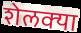
शेलक्या